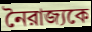
নৈরাজ্যকে